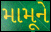
મામૂને